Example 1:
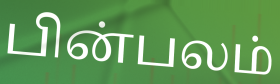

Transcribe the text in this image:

பின்பலம்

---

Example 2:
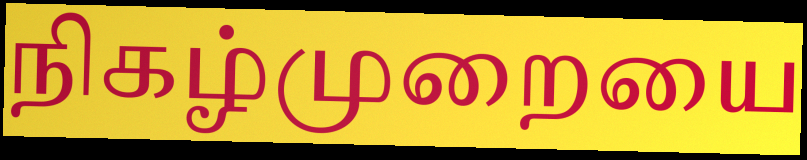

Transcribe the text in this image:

நிகழ்முறையை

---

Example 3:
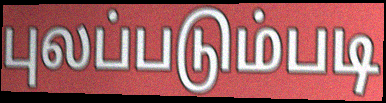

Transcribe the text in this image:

புலப்படும்படி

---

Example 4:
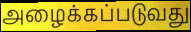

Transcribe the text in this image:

அழைக்கப்படுவது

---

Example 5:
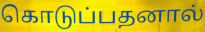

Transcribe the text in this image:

கொடுப்பதனால்